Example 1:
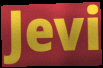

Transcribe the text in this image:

Jevi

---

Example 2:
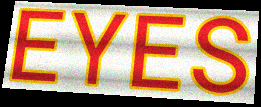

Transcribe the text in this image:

EYES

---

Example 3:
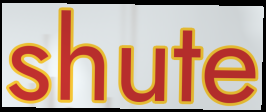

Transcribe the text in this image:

shute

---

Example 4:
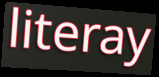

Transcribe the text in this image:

literay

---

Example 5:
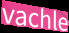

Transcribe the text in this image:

vachle